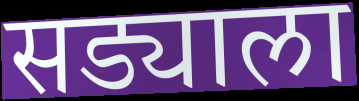
सड्याला